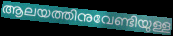
ആലയത്തിനുവേണ്ടിയുള്ള